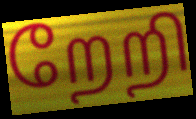
றேறி